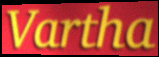
Vartha